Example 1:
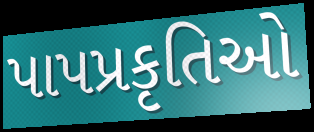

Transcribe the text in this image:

પાપપ્રકૃતિઓ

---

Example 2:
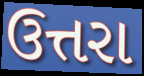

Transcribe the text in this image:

ઉત્તરા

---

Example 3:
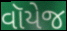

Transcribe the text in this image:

વૉયેજ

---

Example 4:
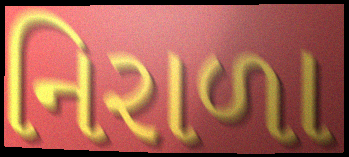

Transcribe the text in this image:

નિરાળા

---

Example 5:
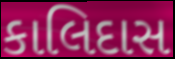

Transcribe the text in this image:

કાલિદાસ